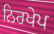
ਨਿਰਖੇਪ